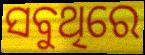
ସବୁଥିରେ